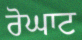
ਰੋਘਾਟ